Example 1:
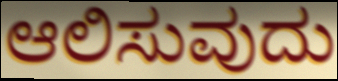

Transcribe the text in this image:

ಆಲಿಸುವುದು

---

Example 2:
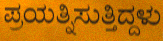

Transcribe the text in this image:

ಪ್ರಯತ್ನಿಸುತ್ತಿದ್ದಳು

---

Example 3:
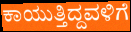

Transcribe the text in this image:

ಕಾಯುತ್ತಿದ್ದವಳಿಗೆ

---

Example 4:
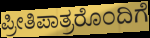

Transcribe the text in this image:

ಪ್ರೀತಿಪಾತ್ರರೊಂದಿಗೆ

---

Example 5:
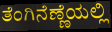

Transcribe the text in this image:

ತೆಂಗಿನೆಣ್ಣೆಯಲ್ಲಿ